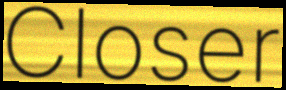
Closer